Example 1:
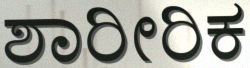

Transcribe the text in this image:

ಶಾರೀರಿಕ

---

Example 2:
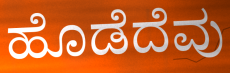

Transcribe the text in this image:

ಹೊಡೆದೆವು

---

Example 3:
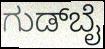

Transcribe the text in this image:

ಗುಡ್‌ಬೈ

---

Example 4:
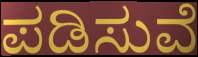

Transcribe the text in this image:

ಪಡಿಸುವೆ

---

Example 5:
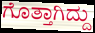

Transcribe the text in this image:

ಗೊತ್ತಾಗಿದ್ದು